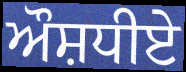
ਔਸ਼ਧੀਏ